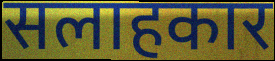
सलाहकार